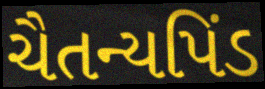
ચૈતન્યપિંડ